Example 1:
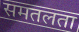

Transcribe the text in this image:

समतलता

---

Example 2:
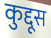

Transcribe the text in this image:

कुद्दूस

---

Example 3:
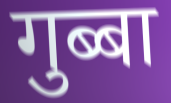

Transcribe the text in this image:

गुब्बा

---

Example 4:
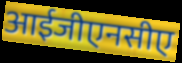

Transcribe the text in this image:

आईजीएनसीए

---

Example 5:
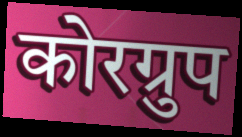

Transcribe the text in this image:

कोरग्रुप